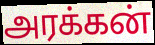
அரக்கன்